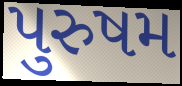
પુરુષમ